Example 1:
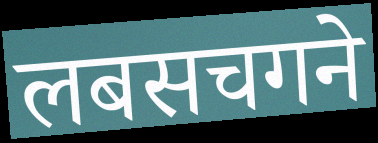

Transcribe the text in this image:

लबसचगने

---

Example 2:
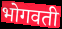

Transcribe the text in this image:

भोगवती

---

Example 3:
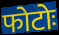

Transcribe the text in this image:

फोटोः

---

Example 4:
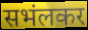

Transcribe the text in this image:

सभंलकर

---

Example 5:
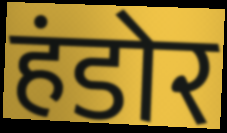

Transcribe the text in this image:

हंडोर